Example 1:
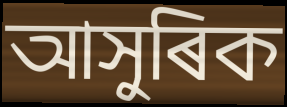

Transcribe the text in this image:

আসুৰিক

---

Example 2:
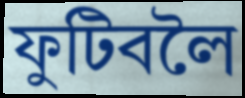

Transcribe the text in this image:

ফুটিবলৈ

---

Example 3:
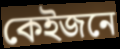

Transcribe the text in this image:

কেইজনে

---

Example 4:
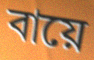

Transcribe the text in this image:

বায়ে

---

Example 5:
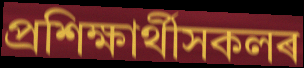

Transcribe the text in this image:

প্ৰশিক্ষাৰ্থীসকলৰ